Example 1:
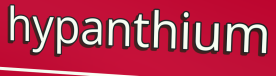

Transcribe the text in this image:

hypanthium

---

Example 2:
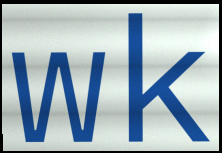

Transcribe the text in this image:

wk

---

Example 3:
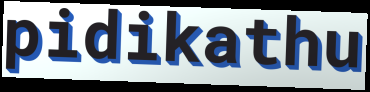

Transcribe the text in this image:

pidikathu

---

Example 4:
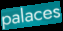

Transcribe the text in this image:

palaces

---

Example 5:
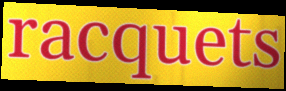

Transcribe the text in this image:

racquets